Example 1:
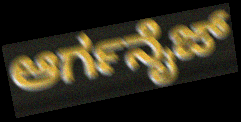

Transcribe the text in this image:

ಆರ್ಗನೈಜ್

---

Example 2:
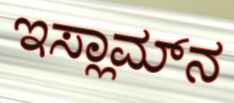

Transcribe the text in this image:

ಇಸ್ಲಾಮ್‌ನ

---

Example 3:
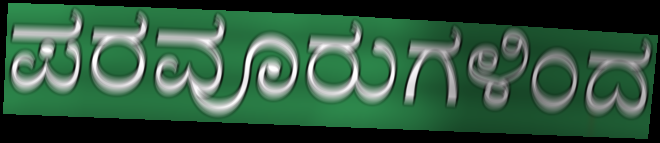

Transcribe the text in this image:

ಪರವೂರುಗಳಿಂದ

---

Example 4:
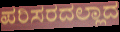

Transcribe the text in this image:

ಪರಿಸರದಲ್ಲಾದ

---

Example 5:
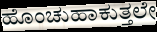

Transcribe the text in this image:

ಹೊಂಚುಹಾಕುತ್ತಲೇ